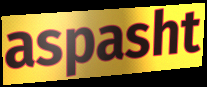
aspasht